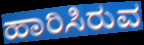
ಹಾರಿಸಿರುವ